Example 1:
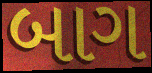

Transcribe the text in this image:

બાગ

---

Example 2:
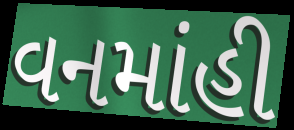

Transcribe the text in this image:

વનમાંહી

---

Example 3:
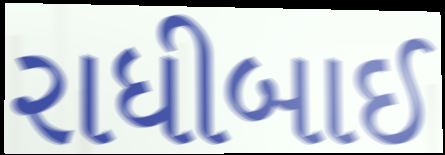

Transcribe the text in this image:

રાધીબાઈ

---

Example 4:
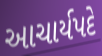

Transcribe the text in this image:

આચાર્યપદે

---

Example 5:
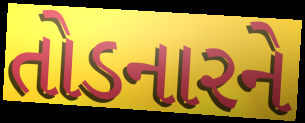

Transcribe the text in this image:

તોડનારને